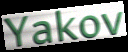
Yakov